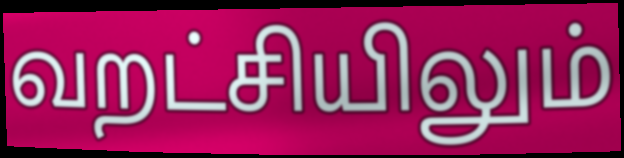
வறட்சியிலும்